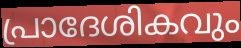
പ്രാദേശികവും